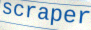
scraper